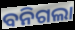
ବନିଗଲା